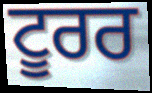
ਟੂਰਰ